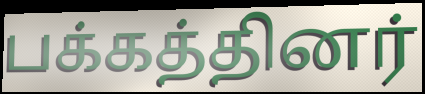
பக்கத்தினர்